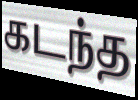
கடந்த